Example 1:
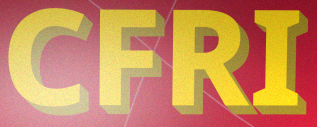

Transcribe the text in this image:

CFRI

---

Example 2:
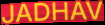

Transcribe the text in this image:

JADHAV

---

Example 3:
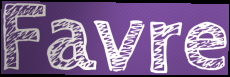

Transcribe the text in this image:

Favre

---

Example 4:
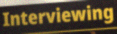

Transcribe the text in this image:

Interviewing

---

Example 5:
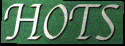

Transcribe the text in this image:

HOTS